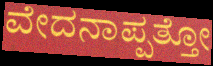
ವೇದನಾಪ್ಪತ್ತೋ